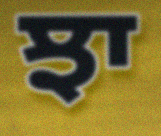
ਝਾ